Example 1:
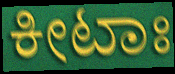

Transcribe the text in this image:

ಕೀಟಾಃ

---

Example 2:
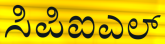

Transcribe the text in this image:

ಸಿಪಿಐಎಲ್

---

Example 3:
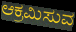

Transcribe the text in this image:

ಆಕ್ರಮಿಸುವ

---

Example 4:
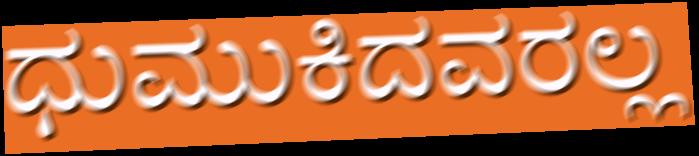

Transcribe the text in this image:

ಧುಮುಕಿದವರಲ್ಲ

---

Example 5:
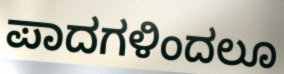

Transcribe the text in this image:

ಪಾದಗಳಿಂದಲೂ